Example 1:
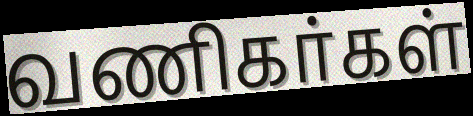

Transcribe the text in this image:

வணிகர்கள்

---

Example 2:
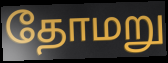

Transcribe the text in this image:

தோமறு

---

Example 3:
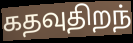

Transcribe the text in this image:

கதவுதிறந்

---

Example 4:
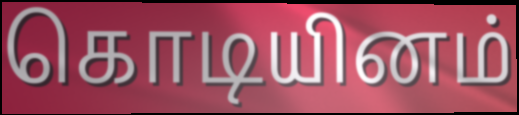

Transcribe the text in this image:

கொடியினம்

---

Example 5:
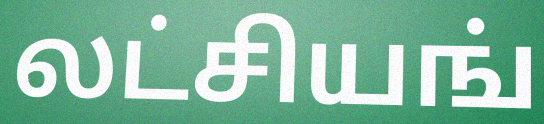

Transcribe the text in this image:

லட்சியங்